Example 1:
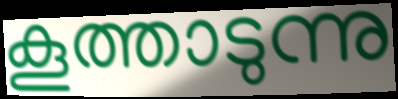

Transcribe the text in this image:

കൂത്താടുന്നു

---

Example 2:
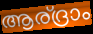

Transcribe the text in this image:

ആര്ദ്രാം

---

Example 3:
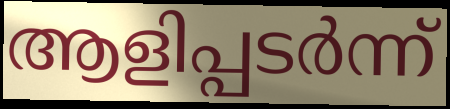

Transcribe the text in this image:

ആളിപ്പടർന്ന്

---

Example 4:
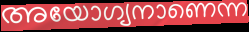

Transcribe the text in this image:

അയോഗ്യനാണെന്ന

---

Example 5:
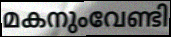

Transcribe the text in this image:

മകനുംവേണ്ടി